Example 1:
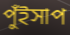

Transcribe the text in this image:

পুঁইসাপ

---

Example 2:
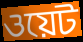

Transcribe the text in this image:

ওয়েট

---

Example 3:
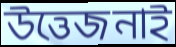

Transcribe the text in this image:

উত্তেজনাই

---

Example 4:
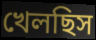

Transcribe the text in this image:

খেলছিস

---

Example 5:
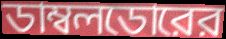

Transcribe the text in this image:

ডাম্বলডোরের